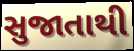
સુજાતાથી